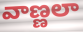
వాణ్ణలా